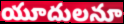
యూదులనూ